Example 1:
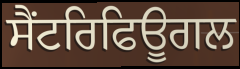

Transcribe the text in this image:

ਸੈਂਟਰਿਫਿਊਗਲ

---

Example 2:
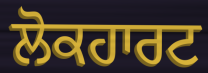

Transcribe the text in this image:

ਲੋਕਹਾਰਟ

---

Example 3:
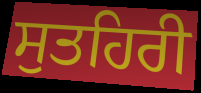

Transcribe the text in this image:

ਸੁਤਹਿਰੀ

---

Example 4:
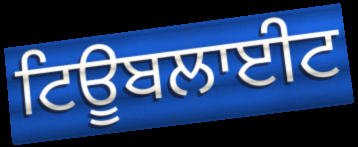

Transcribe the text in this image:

ਟਿਊਬਲਾਈਟ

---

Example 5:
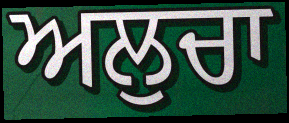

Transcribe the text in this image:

ਅਲੁਚਾ